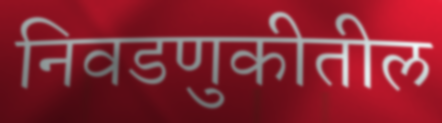
निवडणुकीतील